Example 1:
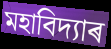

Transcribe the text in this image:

মহাবিদ্যাৰ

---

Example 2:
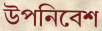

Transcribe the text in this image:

উপনিবেশ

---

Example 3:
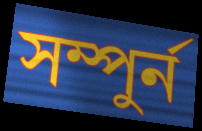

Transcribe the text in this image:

সম্পুৰ্ন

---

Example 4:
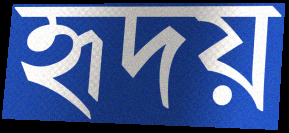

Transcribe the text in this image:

হৃদয়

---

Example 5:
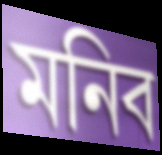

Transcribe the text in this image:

মনিব